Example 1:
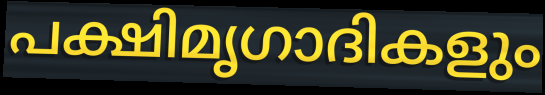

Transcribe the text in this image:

പക്ഷിമൃഗാദികളും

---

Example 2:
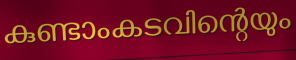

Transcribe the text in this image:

കുണ്ടാംകടവിന്റെയും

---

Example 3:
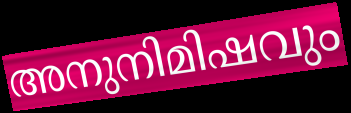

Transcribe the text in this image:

അനുനിമിഷവും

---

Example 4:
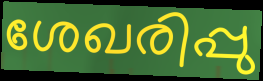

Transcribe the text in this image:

ശേഖരിപ്പു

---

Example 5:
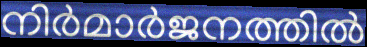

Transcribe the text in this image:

നിർമാർജനത്തിൽ